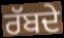
ਰੱਬਦੇ